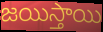
జయిస్తాయి